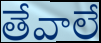
తేవాలే